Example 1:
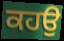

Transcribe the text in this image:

ਕਹਉ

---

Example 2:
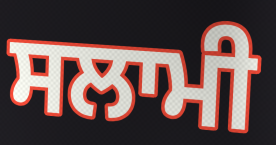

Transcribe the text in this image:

ਸਲਾਮੀ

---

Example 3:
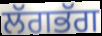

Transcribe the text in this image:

ਲੱਗਭੱਗ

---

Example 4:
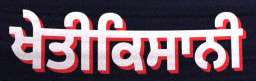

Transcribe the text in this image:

ਖੇਤੀਕਿਸਾਨੀ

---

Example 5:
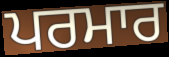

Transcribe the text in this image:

ਪਰਮਾਰ